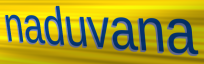
naduvana